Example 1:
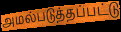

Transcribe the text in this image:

அமல்படுத்தப்பட்டு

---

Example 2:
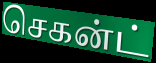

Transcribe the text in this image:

செகன்ட்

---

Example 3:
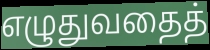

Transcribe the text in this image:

எழுதுவதைத்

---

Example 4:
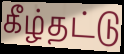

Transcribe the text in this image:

கீழ்தட்டு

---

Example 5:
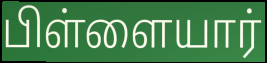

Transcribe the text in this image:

பிள்ளையார்